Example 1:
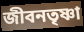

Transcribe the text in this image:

জীবনতৃষ্ণা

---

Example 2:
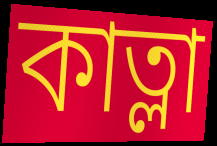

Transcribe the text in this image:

কাত্লা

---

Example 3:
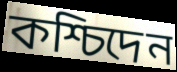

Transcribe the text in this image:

কশ্চিদেন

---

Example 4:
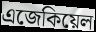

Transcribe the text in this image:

এজেকিয়েল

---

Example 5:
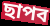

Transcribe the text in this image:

ছাপব